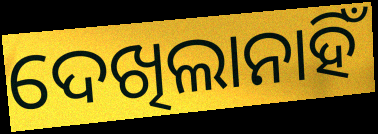
ଦେଖିଲାନାହିଁ